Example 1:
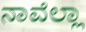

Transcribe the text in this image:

ನಾವೆಲ್ಲಾ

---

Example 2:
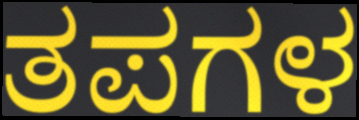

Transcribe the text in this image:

ತಪಗಳ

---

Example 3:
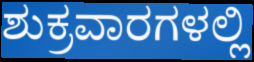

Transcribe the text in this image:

ಶುಕ್ರವಾರಗಳಲ್ಲಿ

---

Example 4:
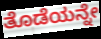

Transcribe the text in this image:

ತೊಡೆಯನ್ನೇ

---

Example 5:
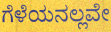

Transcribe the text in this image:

ಗೆಳೆಯನಲ್ಲವೇ